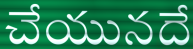
చేయునదే